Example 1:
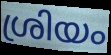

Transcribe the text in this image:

ശ്രിയം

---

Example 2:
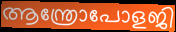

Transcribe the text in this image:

ആന്ത്രോപോളജി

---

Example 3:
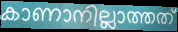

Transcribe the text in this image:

കാണാനില്ലാത്തത്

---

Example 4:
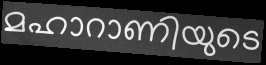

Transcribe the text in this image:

മഹാറാണിയുടെ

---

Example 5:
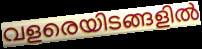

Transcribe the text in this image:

വളരെയിടങ്ങളിൽ